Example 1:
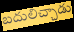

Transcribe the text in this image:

బదులిచ్చాడు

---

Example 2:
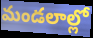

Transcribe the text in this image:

మండలాల్లో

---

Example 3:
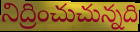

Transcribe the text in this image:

నిద్రించుచున్నది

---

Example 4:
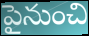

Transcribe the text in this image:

పైనుంచి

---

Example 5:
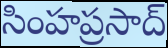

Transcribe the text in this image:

సింహప్రసాద్